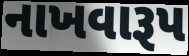
નાખવારૂપ